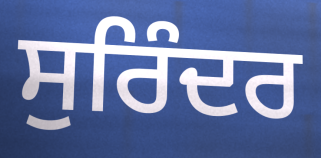
ਸੁਰਿੰਦਰ